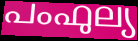
പംഫുല്യ